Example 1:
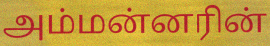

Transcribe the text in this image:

அம்மன்னரின்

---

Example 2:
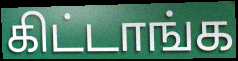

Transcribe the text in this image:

கிட்டாங்க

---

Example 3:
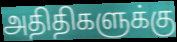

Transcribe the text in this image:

அதிதிகளுக்கு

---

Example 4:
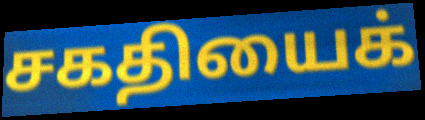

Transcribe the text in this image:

சகதியைக்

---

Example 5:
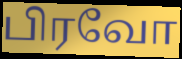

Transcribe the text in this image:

பிரவோ